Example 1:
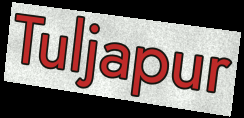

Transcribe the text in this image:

Tuljapur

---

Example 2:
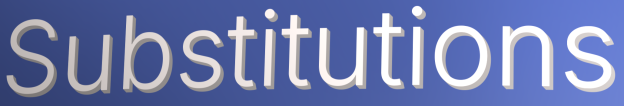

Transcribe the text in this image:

Substitutions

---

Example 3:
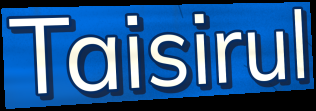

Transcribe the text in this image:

Taisirul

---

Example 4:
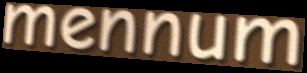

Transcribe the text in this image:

mennum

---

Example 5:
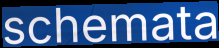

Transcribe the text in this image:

schemata